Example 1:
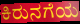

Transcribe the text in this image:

ಕಿರುನಗೆಯ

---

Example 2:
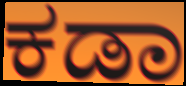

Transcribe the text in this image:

ಕಡಾ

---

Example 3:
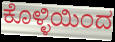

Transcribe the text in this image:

ಕೊಳ್ಳಿಯಿಂದ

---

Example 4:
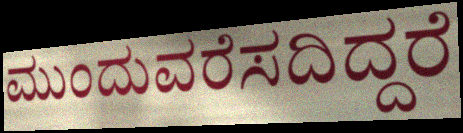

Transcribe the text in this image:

ಮುಂದುವರೆಸದಿದ್ದರೆ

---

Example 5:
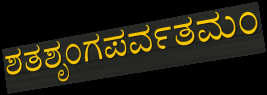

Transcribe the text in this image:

ಶತಶೃಂಗಪರ್ವತಮಂ